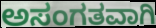
ಅಸಂಗತವಾಗಿ